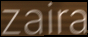
zaira